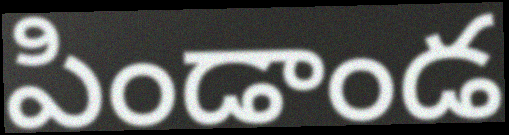
పిండాండ